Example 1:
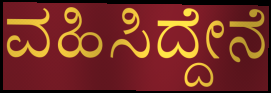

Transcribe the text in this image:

ವಹಿಸಿದ್ದೇನೆ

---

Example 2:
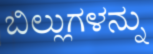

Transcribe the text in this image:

ಬಿಲ್ಲುಗಳನ್ನು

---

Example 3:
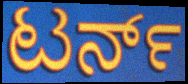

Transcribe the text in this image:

ಟರ್ನ್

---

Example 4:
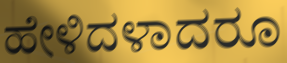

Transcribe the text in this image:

ಹೇಳಿದಳಾದರೂ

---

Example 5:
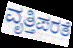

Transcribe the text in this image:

ವೃತ್ತಿಪರತೆ